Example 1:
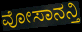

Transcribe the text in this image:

ವೋಸಾನನ್ತಿ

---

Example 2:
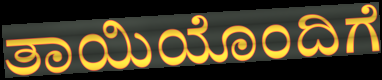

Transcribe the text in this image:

ತಾಯಿಯೊಂದಿಗೆ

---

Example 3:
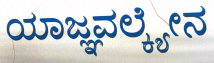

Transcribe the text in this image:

ಯಾಜ್ಞವಲ್ಕ್ಯೇನ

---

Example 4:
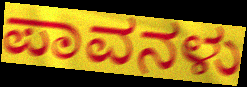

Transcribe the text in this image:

ಪಾವನಳು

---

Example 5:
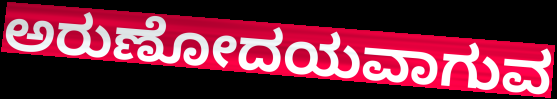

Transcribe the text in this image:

ಅರುಣೋದಯವಾಗುವ